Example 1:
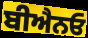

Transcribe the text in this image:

ਬੀਐਨਓ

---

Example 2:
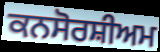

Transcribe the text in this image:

ਕਨਸੋਰਸ਼ੀਅਮ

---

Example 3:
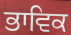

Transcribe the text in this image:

ਭਾਵਿਕ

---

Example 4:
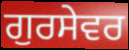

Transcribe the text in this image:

ਗੁਰਸੇਵਰ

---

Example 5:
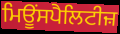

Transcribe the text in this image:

ਮਿਊਂਸਪੈਲਿਟੀਜ਼